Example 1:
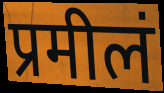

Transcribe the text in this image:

प्रमीलं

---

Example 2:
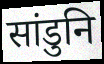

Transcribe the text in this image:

सांडुनि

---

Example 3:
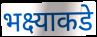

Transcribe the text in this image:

भक्ष्याकडे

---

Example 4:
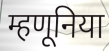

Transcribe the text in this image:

म्हणूनिया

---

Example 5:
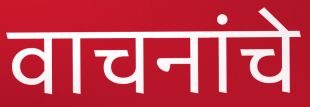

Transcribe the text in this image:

वाचनांचे